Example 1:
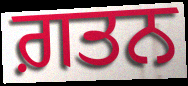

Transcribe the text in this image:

ਗ਼ਤਨ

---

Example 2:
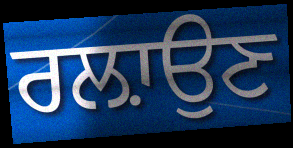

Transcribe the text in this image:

ਰਲ਼ਾਉਣ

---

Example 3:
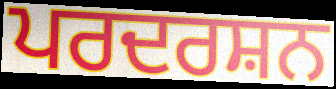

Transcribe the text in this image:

ਪਰਦਰਸ਼ਨ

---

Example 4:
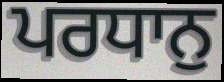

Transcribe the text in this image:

ਪਰਧਾਨੁ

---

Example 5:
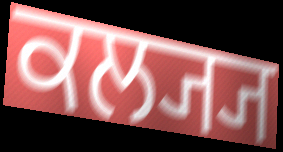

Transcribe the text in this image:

ਕਲ੍ਯ੍ਯ